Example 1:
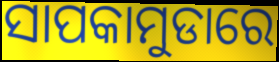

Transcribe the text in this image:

ସାପକାମୁଡାରେ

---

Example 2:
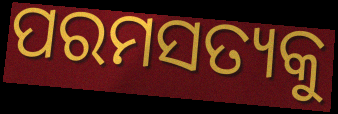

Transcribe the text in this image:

ପରମସତ୍ୟକୁ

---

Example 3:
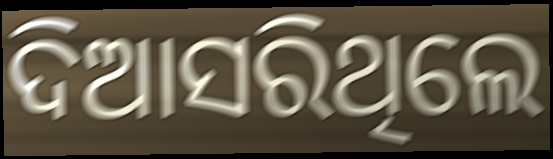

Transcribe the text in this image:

ଦିଆସରିଥିଲେ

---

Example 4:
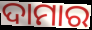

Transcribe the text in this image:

ଦାମାର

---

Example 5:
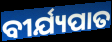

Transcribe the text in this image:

ବୀର୍ଯ୍ୟପାତ